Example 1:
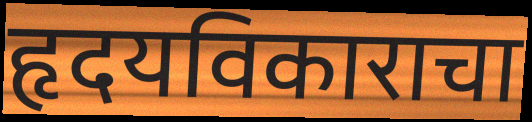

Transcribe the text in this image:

हृदयविकाराचा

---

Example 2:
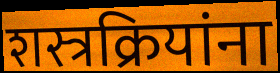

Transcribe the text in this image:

शस्त्रक्रियांना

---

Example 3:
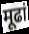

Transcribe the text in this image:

मूढां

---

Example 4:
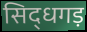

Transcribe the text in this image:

सिद्धगड़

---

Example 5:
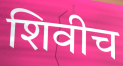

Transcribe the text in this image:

शिवीच